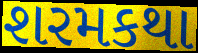
શરમકથા